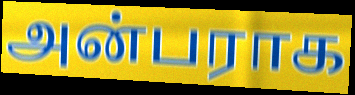
அன்பராக